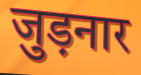
जुड़नार